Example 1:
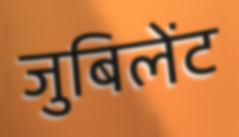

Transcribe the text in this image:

जुबिलेंट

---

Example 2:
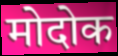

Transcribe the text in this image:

मोदोक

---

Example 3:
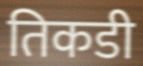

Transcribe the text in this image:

तिकडी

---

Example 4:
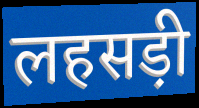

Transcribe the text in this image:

लहसड़ी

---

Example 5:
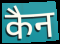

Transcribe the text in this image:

कैन